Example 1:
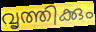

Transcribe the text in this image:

വൃത്തിക്കും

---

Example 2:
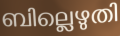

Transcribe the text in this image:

ബില്ലെഴുതി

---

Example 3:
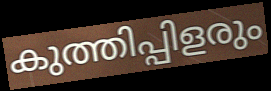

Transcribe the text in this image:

കുത്തിപ്പിളരും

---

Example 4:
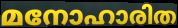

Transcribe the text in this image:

മനോഹാരിത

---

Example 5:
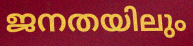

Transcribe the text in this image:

ജനതയിലും